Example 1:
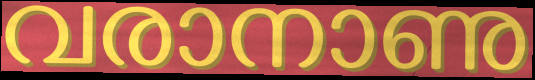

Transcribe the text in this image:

വരാനാണു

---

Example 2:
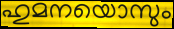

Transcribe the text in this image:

ഹുമനയൊസും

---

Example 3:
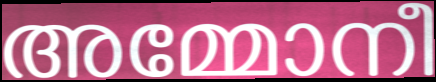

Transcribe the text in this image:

അമ്മോനീ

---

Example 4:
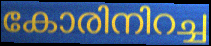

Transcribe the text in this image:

കോരിനിറച്ച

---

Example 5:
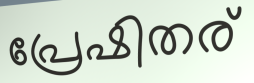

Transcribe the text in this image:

പ്രേഷിതര്